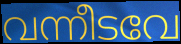
വന്നീടവേ